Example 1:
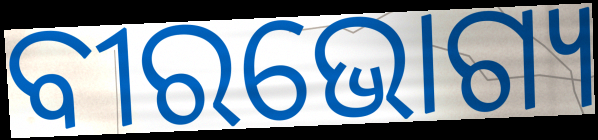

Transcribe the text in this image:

ବୀରଭୋଗ୍ୟ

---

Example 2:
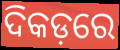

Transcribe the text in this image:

ଦିକଡ଼ରେ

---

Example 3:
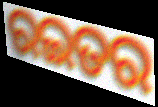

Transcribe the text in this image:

ରଇତର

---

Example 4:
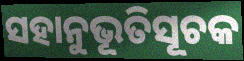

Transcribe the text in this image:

ସହାନୁଭୂତିସୂଚକ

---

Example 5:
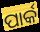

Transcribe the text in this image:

ପାର୍କ